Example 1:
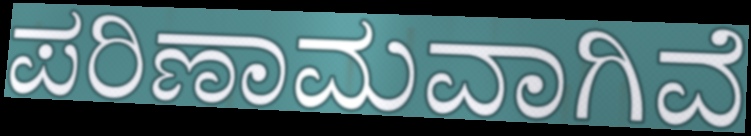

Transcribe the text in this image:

ಪರಿಣಾಮವಾಗಿವೆ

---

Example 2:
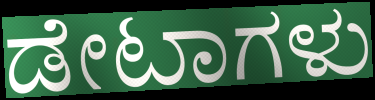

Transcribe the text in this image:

ಡೇಟಾಗಳು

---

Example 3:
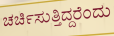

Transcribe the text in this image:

ಚರ್ಚಿಸುತ್ತಿದ್ದರೆಂದು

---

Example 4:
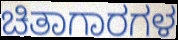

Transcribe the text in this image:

ಚಿತಾಗಾರಗಳ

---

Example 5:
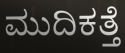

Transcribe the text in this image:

ಮುದಿಕತ್ತೆ